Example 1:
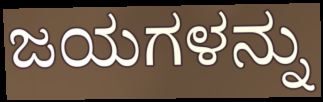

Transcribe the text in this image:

ಜಯಗಳನ್ನು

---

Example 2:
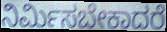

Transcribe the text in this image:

ನಿರ್ಮಿಸಬೇಕಾದರೆ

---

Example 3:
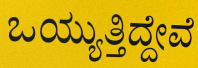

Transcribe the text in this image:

ಒಯ್ಯುತ್ತಿದ್ದೇವೆ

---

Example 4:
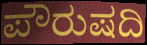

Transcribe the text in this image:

ಪೌರುಷದಿ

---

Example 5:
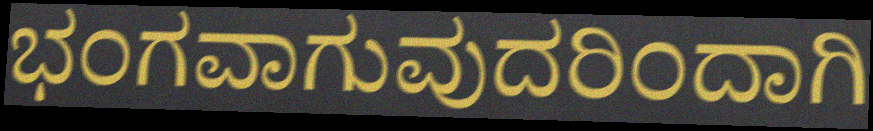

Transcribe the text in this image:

ಭಂಗವಾಗುವುದರಿಂದಾಗಿ